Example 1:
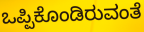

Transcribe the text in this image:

ಒಪ್ಪಿಕೊಂಡಿರುವಂತೆ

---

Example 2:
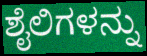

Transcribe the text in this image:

ಶೈಲಿಗಳನ್ನು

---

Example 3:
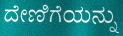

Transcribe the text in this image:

ದೇಣಿಗೆಯನ್ನು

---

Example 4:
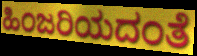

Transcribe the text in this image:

ಹಿಂಜರಿಯದಂತೆ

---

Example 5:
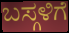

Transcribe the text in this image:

ಬಸ್ಗಳಿಗೆ